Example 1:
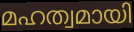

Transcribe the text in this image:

മഹത്വമായി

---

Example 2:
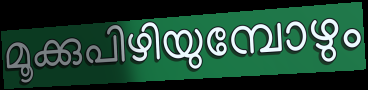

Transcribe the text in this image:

മൂക്കുപിഴിയുമ്പോഴും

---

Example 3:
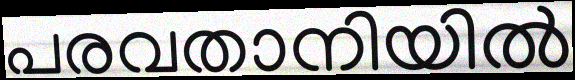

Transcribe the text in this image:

പരവതാനിയിൽ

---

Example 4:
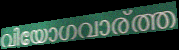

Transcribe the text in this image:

വിയോഗവാര്ത്ത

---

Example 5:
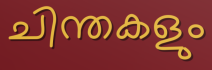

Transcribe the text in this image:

ചിന്തകളും